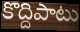
కొద్దిపాటు